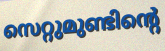
സെറ്റുമുണ്ടിന്റെ